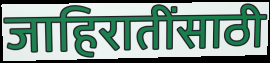
जाहिरातींसाठी